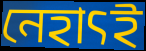
নেহাৎই